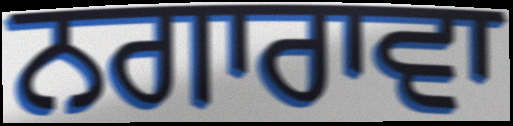
ਨਗਾਰਾਵਾ